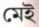
মেই